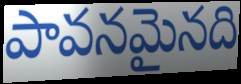
పావనమైనది